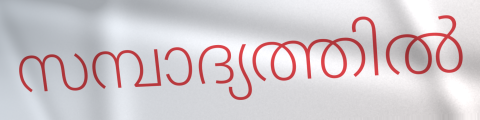
സമ്പാദ്യത്തിൽ